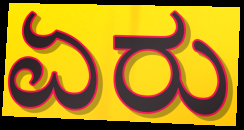
ಏರು